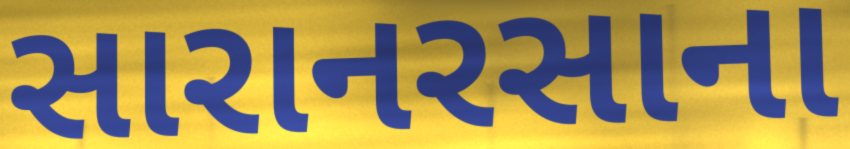
સારાનરસાના